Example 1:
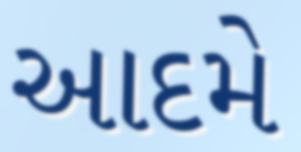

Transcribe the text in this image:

આદમે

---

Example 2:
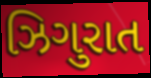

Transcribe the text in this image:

ઝિગુરાત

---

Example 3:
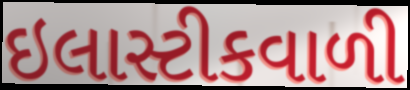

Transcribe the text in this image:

ઇલાસ્ટીકવાળી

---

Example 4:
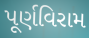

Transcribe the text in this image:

પૂર્ણવિરામ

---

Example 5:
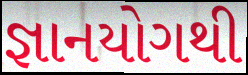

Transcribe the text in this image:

જ્ઞાનયોગથી